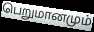
பெறுமானமும்